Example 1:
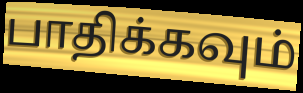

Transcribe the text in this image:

பாதிக்கவும்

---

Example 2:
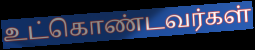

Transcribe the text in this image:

உட்கொண்டவர்கள்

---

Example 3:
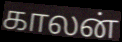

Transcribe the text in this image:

காலன்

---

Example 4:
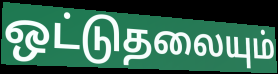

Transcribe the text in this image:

ஒட்டுதலையும்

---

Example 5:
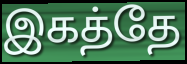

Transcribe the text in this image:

இகத்தே